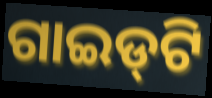
ଗାଇଡ୍‌ଟି